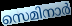
സെമിനാർ